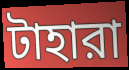
টাহারা